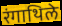
रंगाथिले